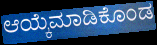
ಆಯ್ಕೆಮಾಡಿಕೊಂಡ